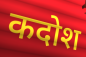
कदोश